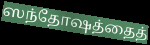
ஸந்தோஷத்தைத்